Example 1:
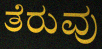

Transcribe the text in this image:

ತೆರುವು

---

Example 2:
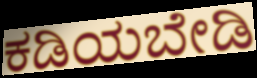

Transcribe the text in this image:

ಕಡಿಯಬೇಡಿ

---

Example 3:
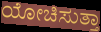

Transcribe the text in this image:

ಯೋಚಿಸುತ್ತಾ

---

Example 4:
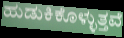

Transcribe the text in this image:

ಹುಡುಕಿಕೊಳ್ಳುತ್ತವೆ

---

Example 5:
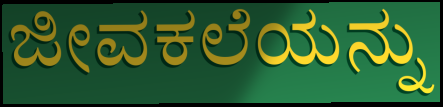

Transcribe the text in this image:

ಜೀವಕಲೆಯನ್ನು